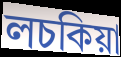
লচকিয়া